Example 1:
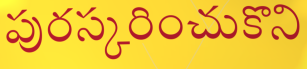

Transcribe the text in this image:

పురస్కరించుకొని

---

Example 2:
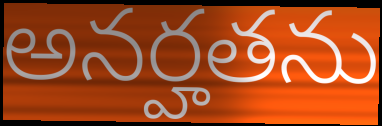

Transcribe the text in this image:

అనర్హతను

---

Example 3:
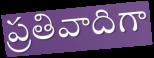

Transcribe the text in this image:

ప్రతివాదిగా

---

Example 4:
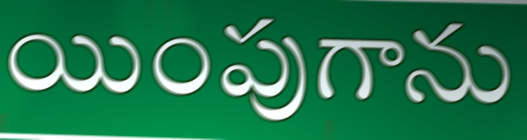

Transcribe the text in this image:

యింపుగాను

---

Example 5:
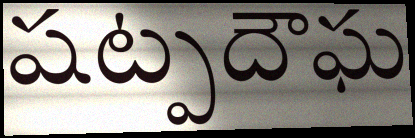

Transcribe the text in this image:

షట్పదౌఘ